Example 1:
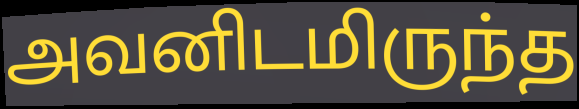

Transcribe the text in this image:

அவனிடமிருந்த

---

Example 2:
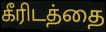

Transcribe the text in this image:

கீரிடத்தை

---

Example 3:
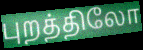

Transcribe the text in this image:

புறத்திலோ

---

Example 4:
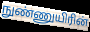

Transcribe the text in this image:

நுண்ணுயிரின்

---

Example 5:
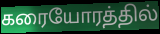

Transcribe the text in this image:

கரையோரத்தில்